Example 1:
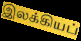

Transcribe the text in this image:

இலக்கியப்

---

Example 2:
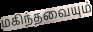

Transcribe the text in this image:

மகிந்தவையும்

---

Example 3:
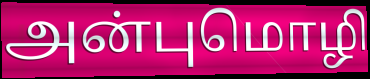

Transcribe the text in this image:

அன்புமொழி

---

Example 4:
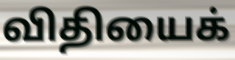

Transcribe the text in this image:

விதியைக்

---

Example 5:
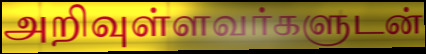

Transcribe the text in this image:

அறிவுள்ளவர்களுடன்